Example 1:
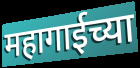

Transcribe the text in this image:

महागाईच्या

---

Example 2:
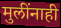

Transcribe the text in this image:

मुलींनाही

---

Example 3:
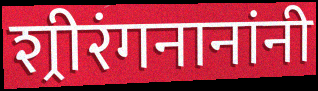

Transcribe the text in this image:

श्रीरंगनानांनी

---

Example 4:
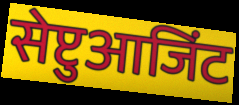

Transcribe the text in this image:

सेप्टुआजिंट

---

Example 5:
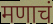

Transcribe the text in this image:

मणाचं